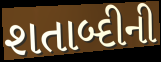
શતાબ્દીની